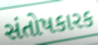
સંતોષકારક